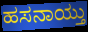
ಹಸನಾಯ್ತು